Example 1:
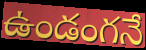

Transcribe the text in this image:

ఉండంగనే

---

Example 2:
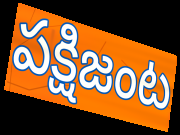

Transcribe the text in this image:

పక్షిజంట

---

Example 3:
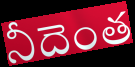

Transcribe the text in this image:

నీదెంత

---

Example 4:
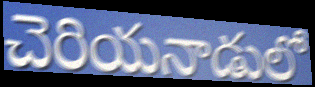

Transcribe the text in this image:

చెరియనాడులో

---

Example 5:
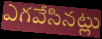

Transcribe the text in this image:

ఎగవేసినట్లు